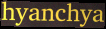
hyanchya